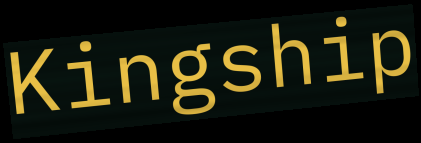
Kingship